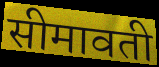
सीमावती